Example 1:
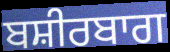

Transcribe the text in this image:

ਬਸ਼ੀਰਬਾਗ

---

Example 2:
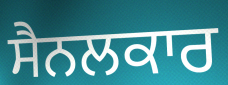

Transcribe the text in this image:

ਸੈਨਲਕਾਰ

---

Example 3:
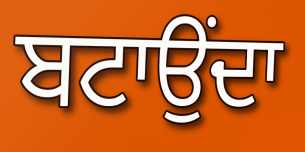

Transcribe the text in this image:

ਬਟਾਉਂਦਾ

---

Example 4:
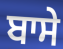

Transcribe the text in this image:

ਬਾਸੇ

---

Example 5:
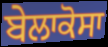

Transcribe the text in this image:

ਬੇਲਾਕੋਸਾ